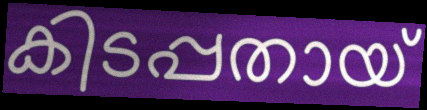
കിടപ്പതായ്